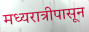
मध्यरात्रीपासून